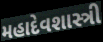
મહાદેવશાસ્ત્રી